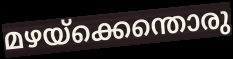
മഴയ്ക്കെന്തൊരു